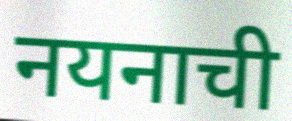
नयनाची